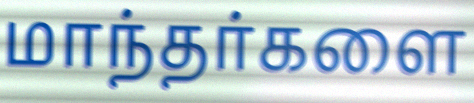
மாந்தர்களை